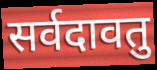
सर्वदावतु